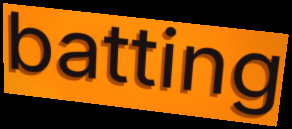
batting